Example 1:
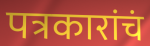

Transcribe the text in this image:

पत्रकारांचं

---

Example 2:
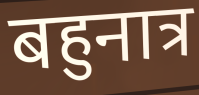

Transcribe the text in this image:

बहुनात्र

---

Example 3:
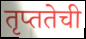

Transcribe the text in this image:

तृप्ततेची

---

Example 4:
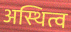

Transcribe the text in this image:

अस्थित्व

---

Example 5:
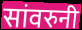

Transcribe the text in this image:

सांवरुनी